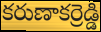
కరుణాకర్రెడ్డి